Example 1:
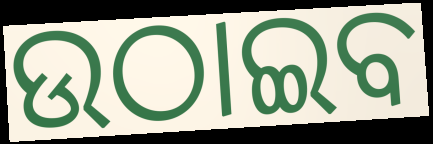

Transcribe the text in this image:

ଉଠାଇବ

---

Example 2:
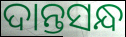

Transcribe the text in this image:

ଦାନ୍ତସନ୍ଧ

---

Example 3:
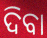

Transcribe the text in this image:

ଦିବା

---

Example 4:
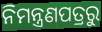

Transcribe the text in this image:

ନିମନ୍ତ୍ରଣପତ୍ରରୁ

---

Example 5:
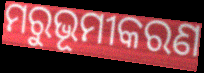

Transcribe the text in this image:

ମରୁଭୂମୀକରଣ